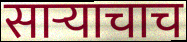
साऱ्याचाच